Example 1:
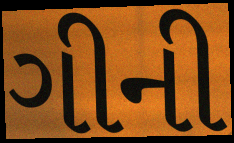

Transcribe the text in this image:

ગીની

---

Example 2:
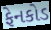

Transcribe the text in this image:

ફેનકોડ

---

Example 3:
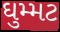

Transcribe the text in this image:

ઘુમ્મટ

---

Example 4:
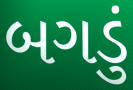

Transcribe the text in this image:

બગડું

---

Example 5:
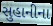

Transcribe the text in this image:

સુહાનીના